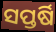
ସପ୍ତର୍ଷି